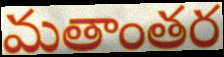
మతాంతర